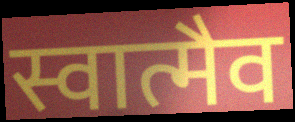
स्वात्मैव